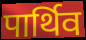
पार्थिव